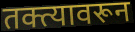
तक्त्यावरून